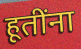
हूतींना